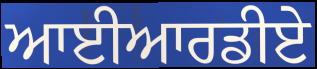
ਆਈਆਰਡੀਏ